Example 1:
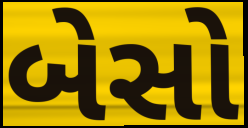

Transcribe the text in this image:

બેસો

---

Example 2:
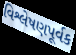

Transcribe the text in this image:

વિશ્લેષણપૂર્વક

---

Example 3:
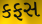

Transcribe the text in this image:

કફસ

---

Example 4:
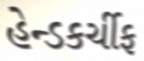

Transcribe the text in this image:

હેન્ડકર્ચીફ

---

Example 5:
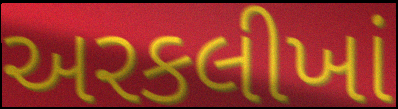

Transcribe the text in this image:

અરકલીખાં